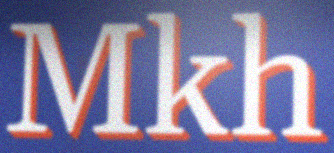
Mkh